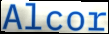
Alcor